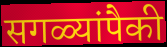
सगळ्यांपैकी